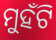
ମୁହଁଟି